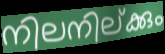
നിലനില്ക്കും